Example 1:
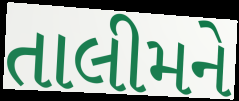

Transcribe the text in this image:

તાલીમને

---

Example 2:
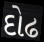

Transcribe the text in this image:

દોઢ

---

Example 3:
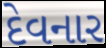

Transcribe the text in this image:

દેવનાર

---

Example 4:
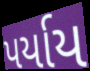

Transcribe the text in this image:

પર્યાય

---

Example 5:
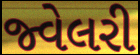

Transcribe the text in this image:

જ્વેલરી